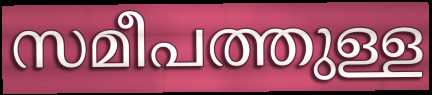
സമീപത്തുള്ള